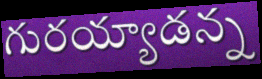
గురయ్యాడన్న